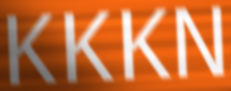
KKKN